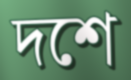
দশে